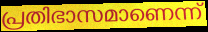
പ്രതിഭാസമാണെന്ന്